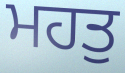
ਮਹਤੁ